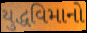
યુદ્ધવિમાનો